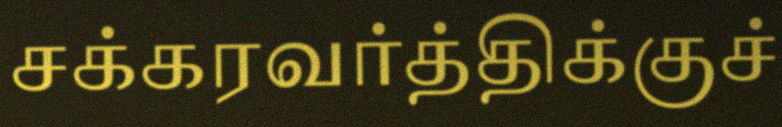
சக்கரவர்த்திக்குச்